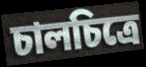
চালচিত্রে